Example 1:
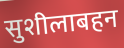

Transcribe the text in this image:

सुशीलाबहन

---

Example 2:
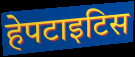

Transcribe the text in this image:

हेपटाइटिस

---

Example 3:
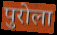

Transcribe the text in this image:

पुरोला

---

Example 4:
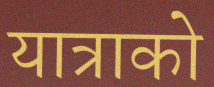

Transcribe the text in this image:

यात्राको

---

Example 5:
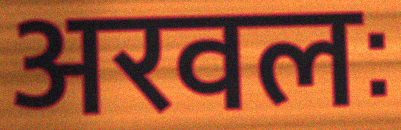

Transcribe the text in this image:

अरवलः